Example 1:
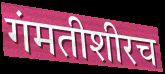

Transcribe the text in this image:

गंमतीशीरच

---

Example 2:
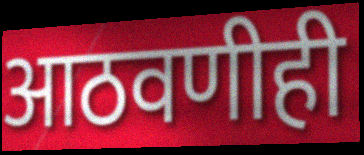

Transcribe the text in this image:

आठवणीही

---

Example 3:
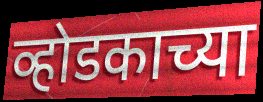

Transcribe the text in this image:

व्होडकाच्या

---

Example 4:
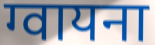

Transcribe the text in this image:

ग्वायना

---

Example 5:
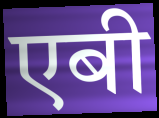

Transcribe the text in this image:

एबी